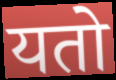
यतो